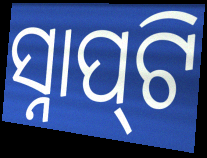
ସ୍ନାପ୍‍ଟି